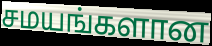
சமயங்களான